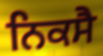
ਨਿਕਸੈ